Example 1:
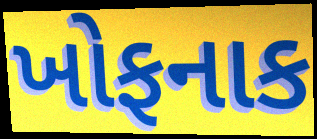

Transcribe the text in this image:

ખોફનાક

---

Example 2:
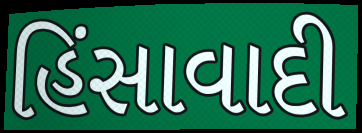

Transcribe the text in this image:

હિંસાવાદી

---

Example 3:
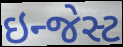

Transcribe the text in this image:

ઇન્જેસ્ટ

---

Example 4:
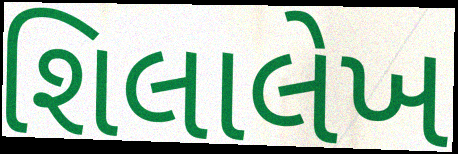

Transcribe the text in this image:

શિલાલેખ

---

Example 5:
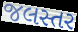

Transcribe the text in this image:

જલસ્તર